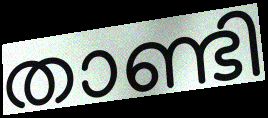
താണ്ടി